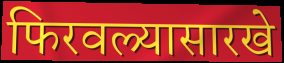
फिरवल्यासारखे